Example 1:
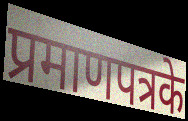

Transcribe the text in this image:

प्रमाणपत्रके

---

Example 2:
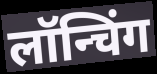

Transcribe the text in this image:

लॉन्चिंग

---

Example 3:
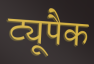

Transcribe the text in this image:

ट्यूपैक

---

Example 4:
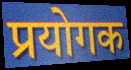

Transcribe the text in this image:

प्रयोगक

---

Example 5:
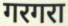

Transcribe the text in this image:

गरगरा